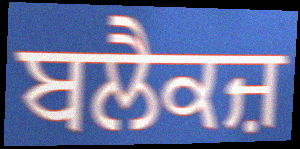
ਬਲੈਕਜ਼